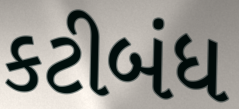
કટીબંધ